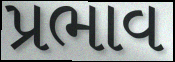
પ્રભાવ